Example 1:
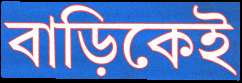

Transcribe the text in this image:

বাড়িকেই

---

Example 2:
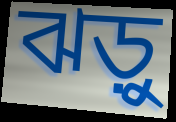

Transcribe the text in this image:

ঝড়ু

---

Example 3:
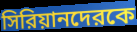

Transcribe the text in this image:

সিরিয়ানদেরকে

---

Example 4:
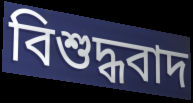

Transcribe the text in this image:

বিশুদ্ধবাদ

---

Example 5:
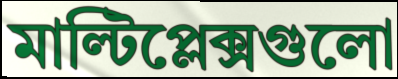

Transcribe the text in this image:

মাল্টিপ্লেক্সগুলো